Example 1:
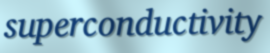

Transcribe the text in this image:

superconductivity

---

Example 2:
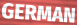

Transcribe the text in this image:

GERMAN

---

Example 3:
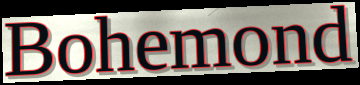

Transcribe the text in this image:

Bohemond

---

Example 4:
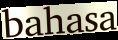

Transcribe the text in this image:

bahasa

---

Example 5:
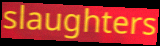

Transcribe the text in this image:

slaughters